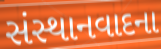
સંસ્થાનવાદના